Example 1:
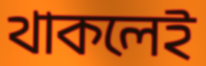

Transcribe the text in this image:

থাকলেই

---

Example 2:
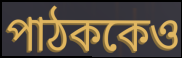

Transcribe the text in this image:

পাঠককেও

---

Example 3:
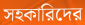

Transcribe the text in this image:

সহকারিদের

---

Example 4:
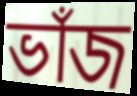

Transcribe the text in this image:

ভাঁজ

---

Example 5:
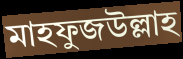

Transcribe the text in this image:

মাহফুজউল্লাহ